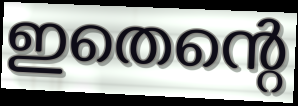
ഇതെന്റെ